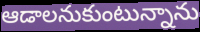
ఆడాలనుకుంటున్నాను